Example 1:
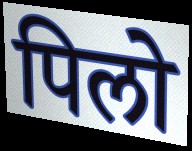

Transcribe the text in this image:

पिलो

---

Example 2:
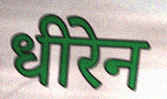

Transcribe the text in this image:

धीरेन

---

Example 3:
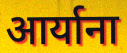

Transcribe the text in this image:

आर्याना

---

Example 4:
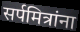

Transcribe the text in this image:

सर्पमित्रांना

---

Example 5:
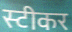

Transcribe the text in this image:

स्टीकर